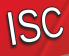
ISC